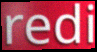
redi